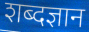
शब्दज्ञान